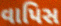
વાપિસ